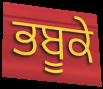
ਭਬੂਕੇ